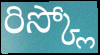
రిస్క్లో